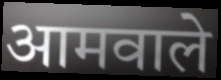
आमवाले